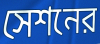
সেশনের